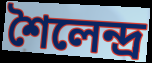
শৈলেন্দ্র